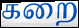
கறை